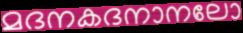
മദനകദനാനലോ